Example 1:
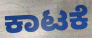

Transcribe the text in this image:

ಕಾಟಕೆ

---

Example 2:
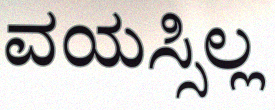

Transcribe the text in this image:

ವಯಸ್ಸಿಲ್ಲ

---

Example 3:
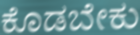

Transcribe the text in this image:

ಕೊಡಬೇಕು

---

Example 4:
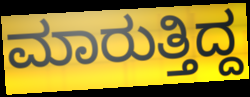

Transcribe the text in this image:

ಮಾರುತ್ತಿದ್ದ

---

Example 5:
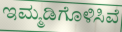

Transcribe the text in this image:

ಇಮ್ಮಡಿಗೊಳಿಸಿವೆ